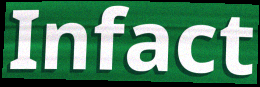
Infact